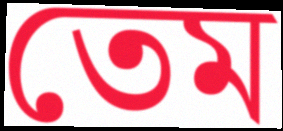
তেম